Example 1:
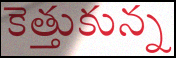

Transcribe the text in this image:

కెత్తుకున్న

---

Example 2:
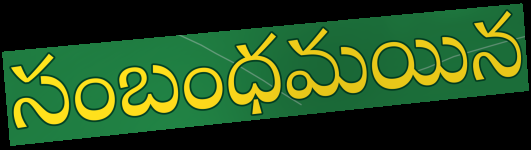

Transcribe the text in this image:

సంబంధమయిన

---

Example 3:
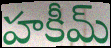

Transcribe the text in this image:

హకీమ్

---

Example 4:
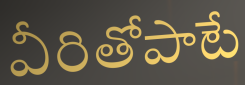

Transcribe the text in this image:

వీరితోపాటే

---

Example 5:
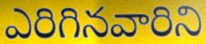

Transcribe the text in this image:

ఎరిగినవారిని